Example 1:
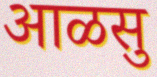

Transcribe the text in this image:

आळसु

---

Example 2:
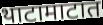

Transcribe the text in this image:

थाटामाटात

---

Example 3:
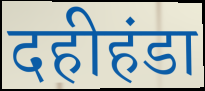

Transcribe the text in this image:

दहीहंडा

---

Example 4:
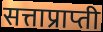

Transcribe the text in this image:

सत्ताप्राप्ती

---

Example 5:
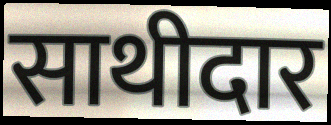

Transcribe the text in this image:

साथीदार